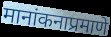
मानांकनाप्रमाणे